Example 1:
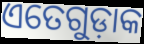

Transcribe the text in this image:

ଏତେଗୁଡ଼ାକ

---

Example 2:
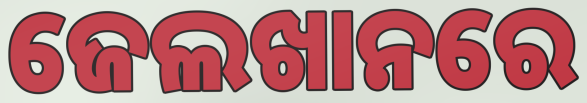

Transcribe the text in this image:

ଜେଲଖାନରେ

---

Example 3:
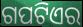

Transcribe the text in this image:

ଗପଟିଏର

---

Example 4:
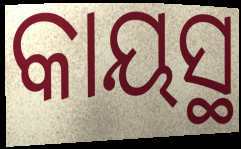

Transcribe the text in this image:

କାୟସ୍ଥ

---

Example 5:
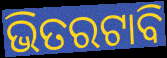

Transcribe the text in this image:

ଭିତରଟାବି